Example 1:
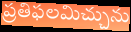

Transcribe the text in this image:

ప్రతిఫలమిచ్చును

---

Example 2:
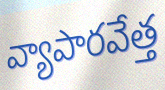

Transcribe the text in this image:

వ్యాపారవేత్త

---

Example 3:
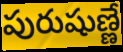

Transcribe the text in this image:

పురుషుణ్ణే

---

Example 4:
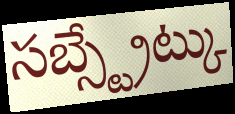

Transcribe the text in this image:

సబ్స్ట్రేట్కు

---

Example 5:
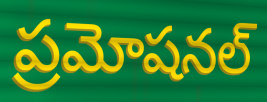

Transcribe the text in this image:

ప్రమోషనల్